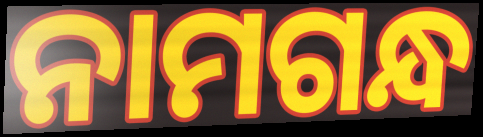
ନାମଗନ୍ଧ